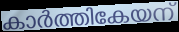
കാർത്തികേയന്